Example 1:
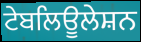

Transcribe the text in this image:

ਟੇਬਲਿਊਲੇਸ਼ਨ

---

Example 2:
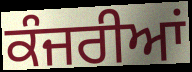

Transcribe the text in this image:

ਕੰਜਰੀਆਂ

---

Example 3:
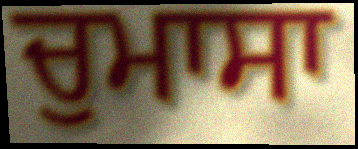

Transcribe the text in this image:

ਚੁਮਾਸਾ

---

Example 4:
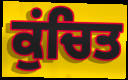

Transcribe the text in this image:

ਕੁਂਚਿਤ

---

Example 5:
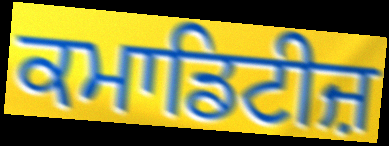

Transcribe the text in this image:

ਕਮਾਡਿਟੀਜ਼